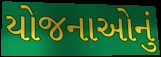
યોજનાઓનું